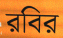
রবির